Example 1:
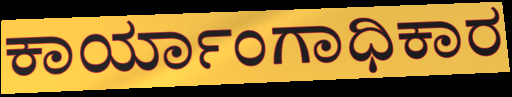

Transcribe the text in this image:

ಕಾರ್ಯಾಂಗಾಧಿಕಾರ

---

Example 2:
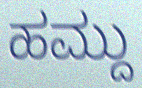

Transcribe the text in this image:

ಹಮ್ದು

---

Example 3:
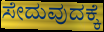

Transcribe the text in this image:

ಸೇದುವುದಕ್ಕೆ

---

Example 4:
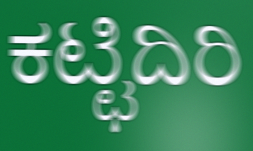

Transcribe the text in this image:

ಕಟ್ಟಿದಿರಿ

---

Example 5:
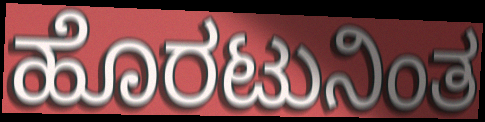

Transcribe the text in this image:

ಹೊರಟುನಿಂತ